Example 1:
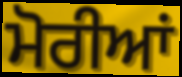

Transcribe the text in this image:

ਮੋਰੀਆਂ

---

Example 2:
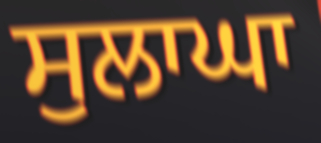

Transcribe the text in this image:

ਸੁਲਾਘਾ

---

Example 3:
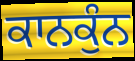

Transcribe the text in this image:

ਕਾਨਕੁੰਨ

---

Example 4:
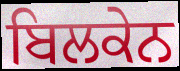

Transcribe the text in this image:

ਬਿਲਕੇਨ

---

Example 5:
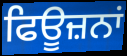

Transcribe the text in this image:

ਫਿਊਜ਼ਨਾਂ